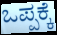
ಒಪ್ಪಕ್ಕೆ